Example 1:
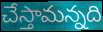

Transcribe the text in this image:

చేస్తామన్నది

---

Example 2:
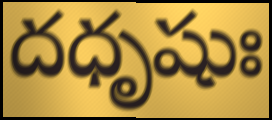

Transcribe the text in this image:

దధృషుః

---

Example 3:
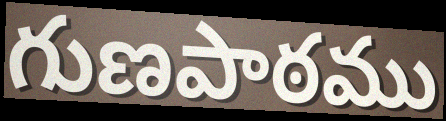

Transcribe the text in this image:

గుణపాఠము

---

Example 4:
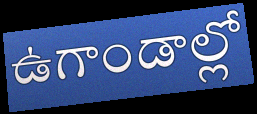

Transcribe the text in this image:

ఉగాండాల్లో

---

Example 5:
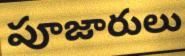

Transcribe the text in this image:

పూజారులు